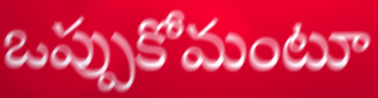
ఒప్పుకోమంటూ